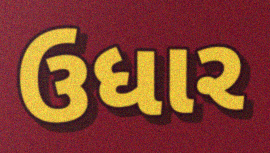
ઉધાર